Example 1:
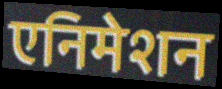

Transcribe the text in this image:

एनिमेशन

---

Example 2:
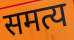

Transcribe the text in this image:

समत्य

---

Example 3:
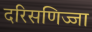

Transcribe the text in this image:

दरिसणिज्जा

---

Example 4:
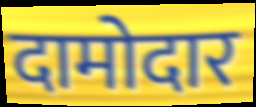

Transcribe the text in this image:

दामोदार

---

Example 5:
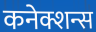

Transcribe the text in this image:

कनेक्शन्स